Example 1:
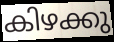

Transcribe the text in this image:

കിഴക്കു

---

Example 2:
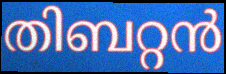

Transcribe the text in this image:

തിബറ്റൻ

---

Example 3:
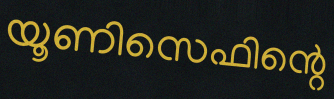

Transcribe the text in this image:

യൂണിസെഫിന്റെ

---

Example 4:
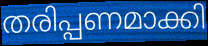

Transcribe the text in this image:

തരിപ്പണമാക്കി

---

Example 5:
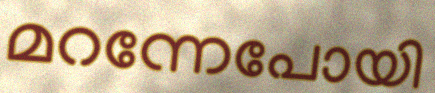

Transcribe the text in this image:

മറന്നേപോയി